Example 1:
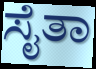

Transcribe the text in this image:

ಸೈತಾ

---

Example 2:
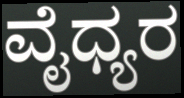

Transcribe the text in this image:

ವೈಧ್ಯರ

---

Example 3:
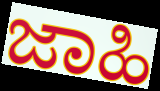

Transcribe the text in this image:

ಜಾಹಿ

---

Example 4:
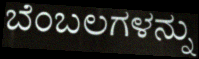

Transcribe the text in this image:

ಬೆಂಬಲಗಳನ್ನು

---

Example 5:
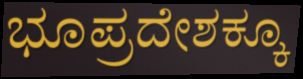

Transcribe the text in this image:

ಭೂಪ್ರದೇಶಕ್ಕೂ